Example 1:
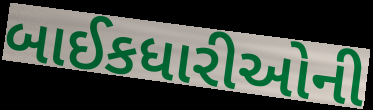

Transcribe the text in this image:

બાઈકધારીઓની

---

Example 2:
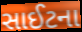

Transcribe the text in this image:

સાઈટના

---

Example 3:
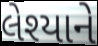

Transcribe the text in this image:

લેશ્યાને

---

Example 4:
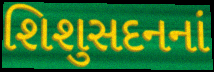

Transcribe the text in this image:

શિશુસદનનાં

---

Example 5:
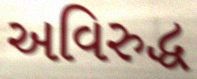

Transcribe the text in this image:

અવિરુદ્ધ